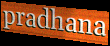
pradhana